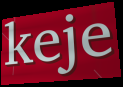
keje